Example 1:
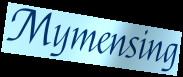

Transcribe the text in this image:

Mymensing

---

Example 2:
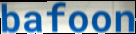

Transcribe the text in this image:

bafoon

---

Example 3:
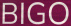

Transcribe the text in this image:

BIGO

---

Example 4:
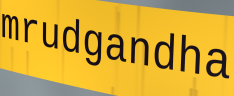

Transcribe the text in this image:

mrudgandha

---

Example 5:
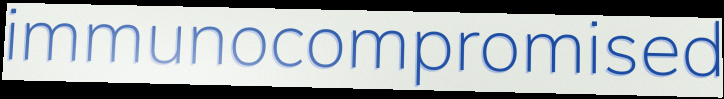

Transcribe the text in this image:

immunocompromised